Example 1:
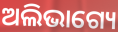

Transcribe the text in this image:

ଅଲିଭାଗ୍ୟେ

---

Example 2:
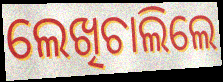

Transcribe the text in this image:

ଲେଖିଚାଲିଲେ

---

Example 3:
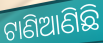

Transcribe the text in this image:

ଟାଣିଆଣିଛି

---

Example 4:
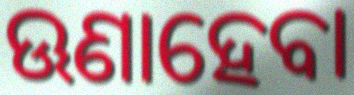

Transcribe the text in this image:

ଊଣାହେବା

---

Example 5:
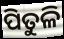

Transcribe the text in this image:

ପିତୁଳି